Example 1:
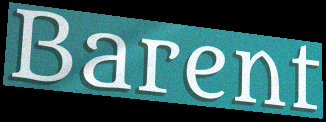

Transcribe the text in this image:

Barent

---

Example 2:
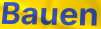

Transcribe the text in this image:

Bauen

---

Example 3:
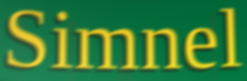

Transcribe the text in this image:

Simnel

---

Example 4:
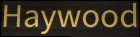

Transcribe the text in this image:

Haywood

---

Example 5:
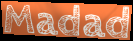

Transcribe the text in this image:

Madad